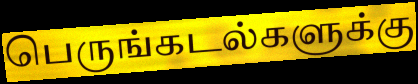
பெருங்கடல்களுக்கு